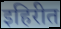
इहिरीत